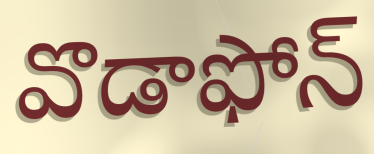
వొడాఫోన్